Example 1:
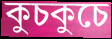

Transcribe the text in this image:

কুচকুচে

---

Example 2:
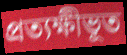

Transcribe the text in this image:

প্রত্যক্ষীভূত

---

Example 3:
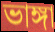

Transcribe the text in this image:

ভাঙ্গা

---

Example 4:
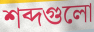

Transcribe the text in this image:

শব্দগুলো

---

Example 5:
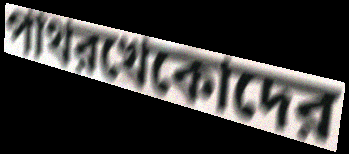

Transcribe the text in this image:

পাথরখেকোদের